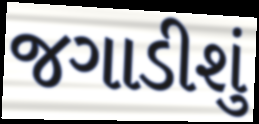
જગાડીશું